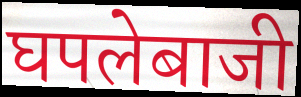
घपलेबाजी